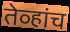
तेव्हांच